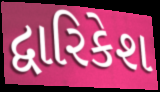
દ્વારિકેશ